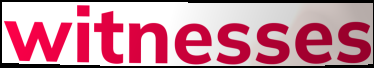
witnesses